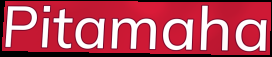
Pitamaha